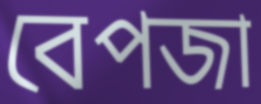
বেপজা